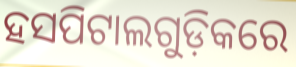
ହସପିଟାଲଗୁଡ଼ିକରେ